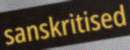
sanskritised